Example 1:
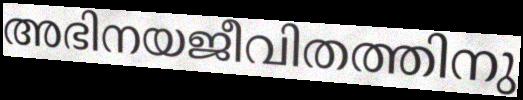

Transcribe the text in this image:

അഭിനയജീവിതത്തിനു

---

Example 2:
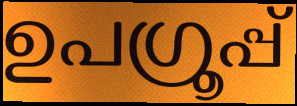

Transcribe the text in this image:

ഉപഗ്രൂപ്പ്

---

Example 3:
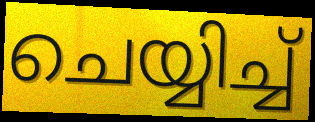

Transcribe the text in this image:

ചെയ്യിച്ച്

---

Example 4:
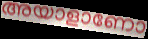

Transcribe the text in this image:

അയാളാണോ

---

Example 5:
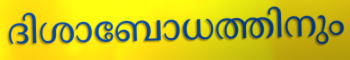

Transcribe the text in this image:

ദിശാബോധത്തിനും